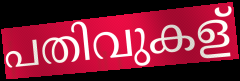
പതിവുകള്